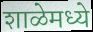
शाळेमध्ये